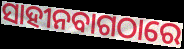
ସାହୀନବାଗଠାରେ